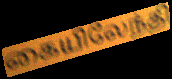
கையிலேந்தி